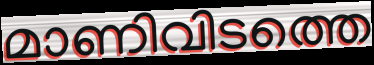
മാണിവിടത്തെ